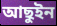
আছুইন